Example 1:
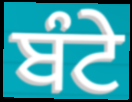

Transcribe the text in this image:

ਬੰਟੇ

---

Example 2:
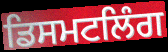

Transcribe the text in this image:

ਡਿਸਮਟਲਿੰਗ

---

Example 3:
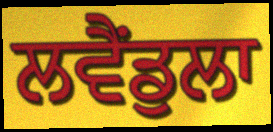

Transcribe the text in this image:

ਲਵੈਂਡੁਲਾ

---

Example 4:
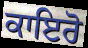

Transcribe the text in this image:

ਕਾਇਰੋ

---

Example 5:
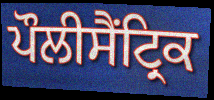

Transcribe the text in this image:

ਪੌਲੀਸੈਂਟ੍ਰਿਕ